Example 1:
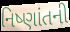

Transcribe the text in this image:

નિષ્ણાંતની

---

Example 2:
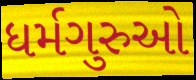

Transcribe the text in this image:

ધર્મગુરુઓ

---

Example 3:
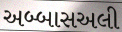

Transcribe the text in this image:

અબ્બાસઅલી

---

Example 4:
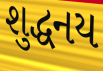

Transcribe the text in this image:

શુદ્ધનય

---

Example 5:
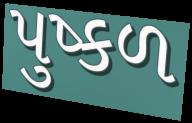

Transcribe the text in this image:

પુષ્કળ